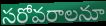
సరోవరాలనూ